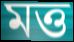
মত্ত